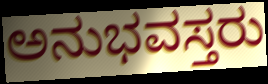
ಅನುಭವಸ್ತರು